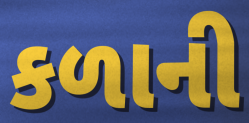
કળાની